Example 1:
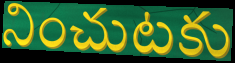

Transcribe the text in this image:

నించుటకు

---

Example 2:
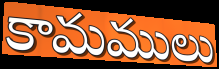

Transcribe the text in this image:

కామములు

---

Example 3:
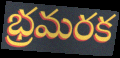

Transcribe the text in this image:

భ్రమరక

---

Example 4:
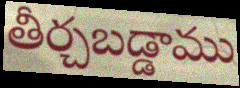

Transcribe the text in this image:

తీర్చబడ్డాము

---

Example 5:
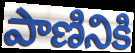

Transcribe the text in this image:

పాణినికి